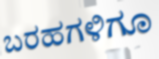
ಬರಹಗಳಿಗೂ